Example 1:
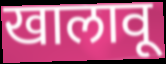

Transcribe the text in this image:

खालावू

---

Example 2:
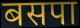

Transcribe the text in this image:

बसपा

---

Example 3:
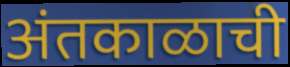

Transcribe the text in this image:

अंतकाळाची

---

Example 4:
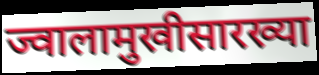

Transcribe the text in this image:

ज्वालामुखीसारख्या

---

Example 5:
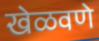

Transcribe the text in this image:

खेळवणे